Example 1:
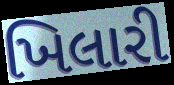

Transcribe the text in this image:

ખિલારી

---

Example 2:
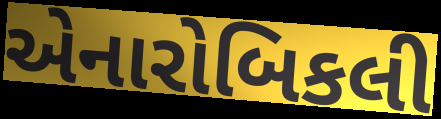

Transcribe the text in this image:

એનારોબિકલી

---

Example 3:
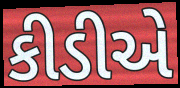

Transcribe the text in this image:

કીડીએ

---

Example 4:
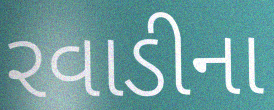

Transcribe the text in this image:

રવાડીના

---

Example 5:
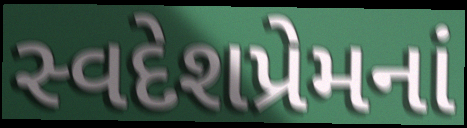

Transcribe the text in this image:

સ્વદેશપ્રેમનાં